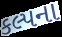
કલ્પના